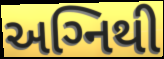
અગ્‍નિથી